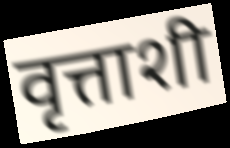
वृत्ताशी